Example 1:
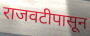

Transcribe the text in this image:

राजवटीपासून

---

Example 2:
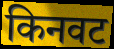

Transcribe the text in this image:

किनवट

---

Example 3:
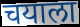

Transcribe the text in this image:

चयाला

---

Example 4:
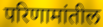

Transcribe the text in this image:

परिणामांतील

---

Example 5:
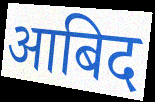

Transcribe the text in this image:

आबिद